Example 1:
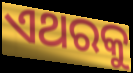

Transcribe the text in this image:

ଏଥରକୁ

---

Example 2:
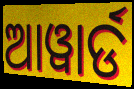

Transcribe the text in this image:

ଆୱାର୍ଡ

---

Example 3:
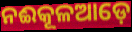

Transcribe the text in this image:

ନଈକୂଳଆଡ଼େ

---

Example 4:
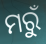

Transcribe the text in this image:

ମରୁଁ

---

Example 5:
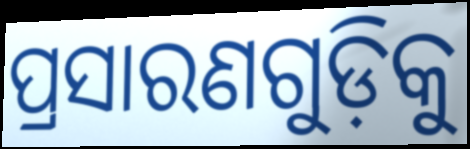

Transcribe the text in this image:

ପ୍ରସାରଣଗୁଡ଼ିକୁ